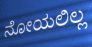
ನೋಯಲಿಲ್ಲ